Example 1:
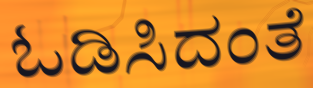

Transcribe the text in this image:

ಓಡಿಸಿದಂತೆ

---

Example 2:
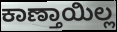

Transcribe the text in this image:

ಕಾಣ್ತಾಯಿಲ್ಲ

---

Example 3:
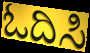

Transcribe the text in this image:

ಓದಿಸಿ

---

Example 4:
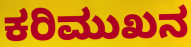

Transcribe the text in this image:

ಕರಿಮುಖನ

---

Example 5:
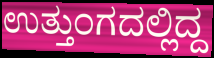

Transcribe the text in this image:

ಉತ್ತುಂಗದಲ್ಲಿದ್ದ